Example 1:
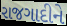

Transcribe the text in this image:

રાજગાદીને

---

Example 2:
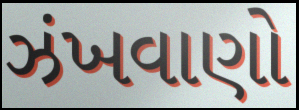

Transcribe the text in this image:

ઝંખવાણો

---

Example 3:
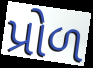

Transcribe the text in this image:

પ્રોળ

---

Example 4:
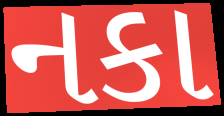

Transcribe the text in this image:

નકા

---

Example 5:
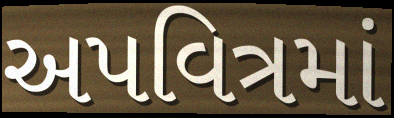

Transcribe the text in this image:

અપવિત્રમાં